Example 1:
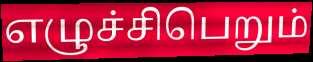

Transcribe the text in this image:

எழுச்சிபெறும்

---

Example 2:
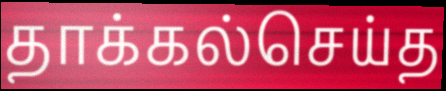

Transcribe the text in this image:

தாக்கல்செய்த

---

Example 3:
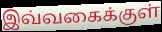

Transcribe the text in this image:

இவ்வகைக்குள்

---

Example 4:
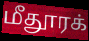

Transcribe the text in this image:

மீதூரக்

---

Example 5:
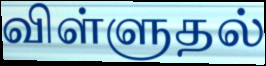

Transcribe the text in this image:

விள்ளுதல்